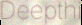
Deepthi